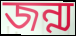
জন্ম